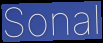
Sonal